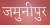
जमुनीपुर